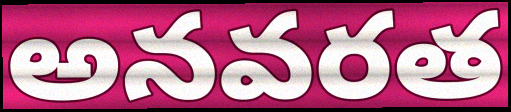
అనవరత